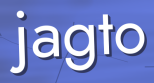
jagto